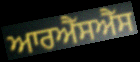
ਆਰਐੱਸਐੱਸ